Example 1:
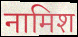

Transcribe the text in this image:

नामिश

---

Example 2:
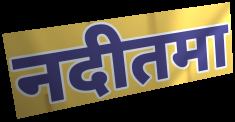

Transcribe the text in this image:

नदीतमा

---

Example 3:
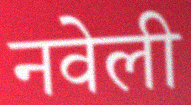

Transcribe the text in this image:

नवेली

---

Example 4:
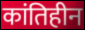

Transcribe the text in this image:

कांतिहीन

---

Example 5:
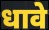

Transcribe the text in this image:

धावे